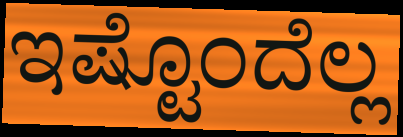
ಇಷ್ಟೊಂದೆಲ್ಲ